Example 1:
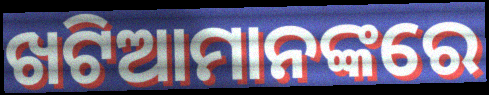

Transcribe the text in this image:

ଖଟିଆମାନଙ୍କରେ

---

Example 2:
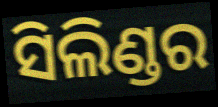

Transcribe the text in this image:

ସିଲିଣ୍ଡର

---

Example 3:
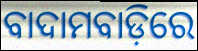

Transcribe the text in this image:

ବାଦାମବାଡ଼ିରେ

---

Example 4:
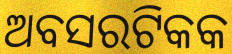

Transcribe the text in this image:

ଅବସରଟିକକ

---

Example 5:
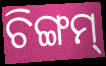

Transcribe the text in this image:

ଚିଙ୍ଗମ୍